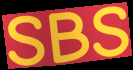
SBS